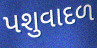
પશુવાદળ